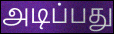
அடிப்பது